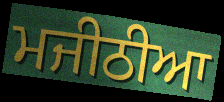
ਮਜੀਠੀਆ